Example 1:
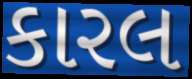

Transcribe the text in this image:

કારલ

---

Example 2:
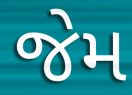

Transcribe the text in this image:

જેમ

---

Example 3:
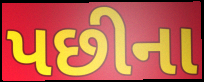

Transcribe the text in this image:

પછીના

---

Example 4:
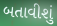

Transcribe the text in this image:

બતાવીશું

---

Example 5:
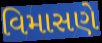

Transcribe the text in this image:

વિમાસણે